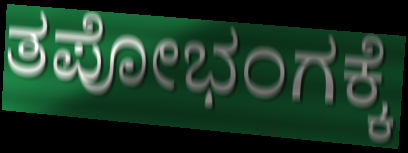
ತಪೋಭಂಗಕ್ಕೆ